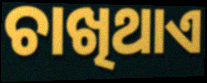
ଚାଖିଥାଏ